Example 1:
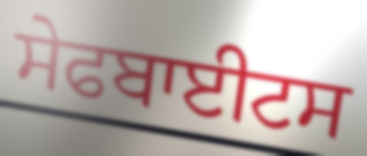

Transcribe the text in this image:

ਸੇਫਬਾਈਟਸ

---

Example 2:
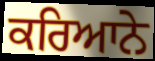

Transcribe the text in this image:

ਕਰਿਆਨੇ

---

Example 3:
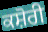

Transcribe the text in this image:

ਕਸ਼ੋਰੀ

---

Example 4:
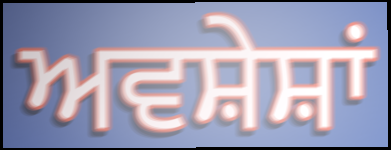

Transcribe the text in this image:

ਅਵਸ਼ੇਸ਼ਾਂ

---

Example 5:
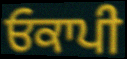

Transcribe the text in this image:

ਓਕਾਪੀ